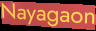
Nayagaon